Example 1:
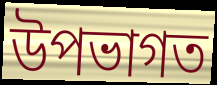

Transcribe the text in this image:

উপভাগত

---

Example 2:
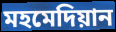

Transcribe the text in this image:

মহমেদিয়ান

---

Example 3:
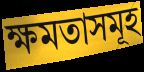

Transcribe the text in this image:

ক্ষমতাসমূহ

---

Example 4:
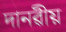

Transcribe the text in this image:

দানৱীয়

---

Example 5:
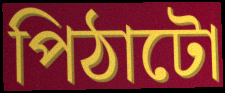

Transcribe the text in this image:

পিঠাটো